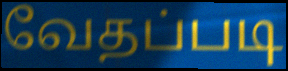
வேதப்படி